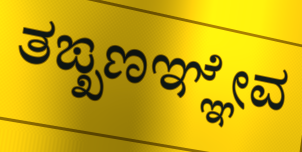
ತಙ್ಖಣಞ್ಞೇವ